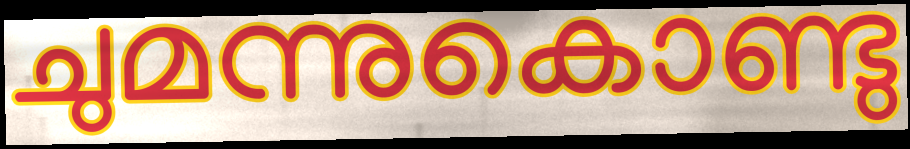
ചുമന്നുകൊണ്ടു